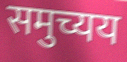
समुच्यय